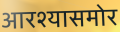
आरश्यासमोर